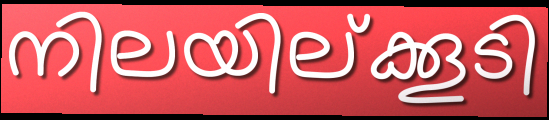
നിലയില്ക്കൂടി